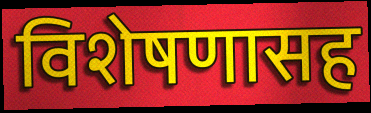
विशेषणासह